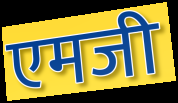
एमजी